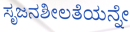
ಸೃಜನಶೀಲತೆಯನ್ನೇ